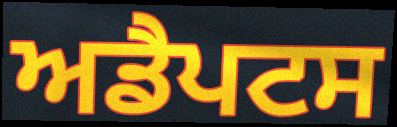
ਅਡੈਪਟਸ